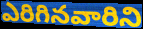
ఎరిగినవారిని